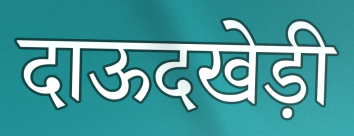
दाऊदखेड़ी